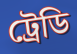
ট্রেডি